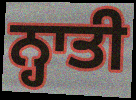
ਨ੍ਹਾਤੀ